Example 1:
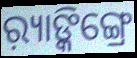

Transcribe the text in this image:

ର଼୍ୟାଙ୍କିଙ୍ଗ୍ରେ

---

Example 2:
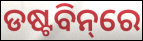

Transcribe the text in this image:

ଡଷ୍ଟବିନ୍‌ରେ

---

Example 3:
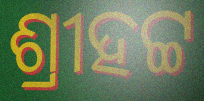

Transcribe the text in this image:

ଶ୍ରୀହଟ୍ଟ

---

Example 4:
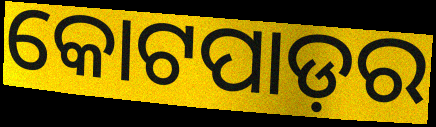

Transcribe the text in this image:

କୋଟପାଡ଼ର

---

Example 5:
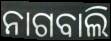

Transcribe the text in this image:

ନାଗବାଲି